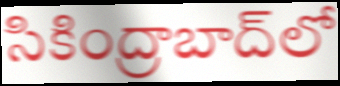
సికింద్రాబాద్‌లో